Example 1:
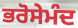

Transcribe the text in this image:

ਭਰੋਸੇਮੰਦ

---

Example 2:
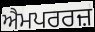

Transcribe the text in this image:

ਐਮਪਰਰਜ਼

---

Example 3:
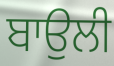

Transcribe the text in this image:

ਬਾਉਲੀ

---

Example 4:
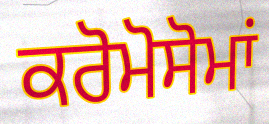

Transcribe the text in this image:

ਕਰੋਮੋਸੋਮਾਂ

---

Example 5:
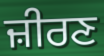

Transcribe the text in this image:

ਜ਼ੀਰਣ